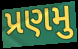
પ્રણમુ